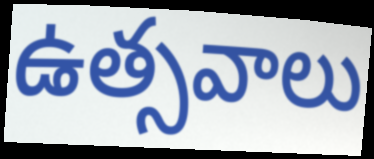
ఉత్సవాలు